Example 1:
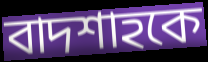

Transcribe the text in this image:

বাদশাহকে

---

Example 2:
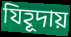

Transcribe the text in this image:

যিহূদায়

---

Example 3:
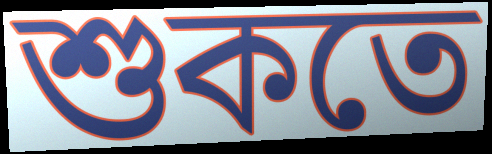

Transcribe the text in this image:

শুকতে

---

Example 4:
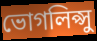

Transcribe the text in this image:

ভোগলিপ্সু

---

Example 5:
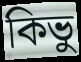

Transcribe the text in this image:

কিভু